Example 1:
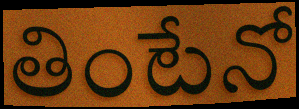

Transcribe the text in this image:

తింటేనో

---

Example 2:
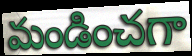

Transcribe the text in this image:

మండించగా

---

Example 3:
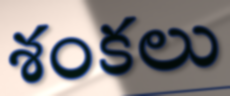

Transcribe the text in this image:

శంకలు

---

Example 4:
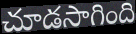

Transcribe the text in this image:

చూడసాగింది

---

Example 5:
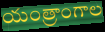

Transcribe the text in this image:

యంత్రాంగాల